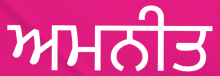
ਅਮਨੀਤ